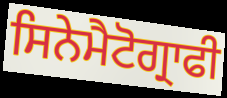
ਸਿਨੇਮੈਟੋਗ੍ਰਾਫੀ